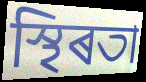
স্থিৰতা